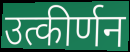
उत्कीर्णन